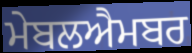
ਮੇਬਲਐਮਬਰ